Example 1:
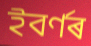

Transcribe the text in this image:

ইবৰ্ণৰ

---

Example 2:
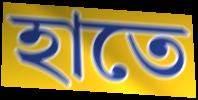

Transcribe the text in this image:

হাতে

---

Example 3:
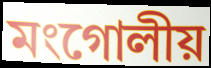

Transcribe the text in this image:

মংগোলীয়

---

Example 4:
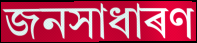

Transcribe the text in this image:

জনসাধাৰণ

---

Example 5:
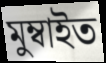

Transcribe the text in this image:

মুম্বাইত